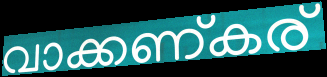
വാക്കണ്കര്